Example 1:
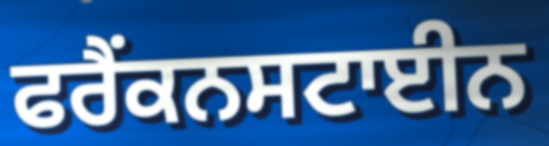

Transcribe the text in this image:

ਫਰੈਂਕਨਸਟਾਈਨ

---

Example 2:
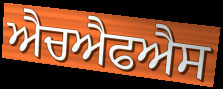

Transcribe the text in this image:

ਐਚਐਫਐਸ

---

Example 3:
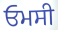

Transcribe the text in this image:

ਓਮਸੀ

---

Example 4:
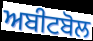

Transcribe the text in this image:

ਅਬੀਟਬੋਲ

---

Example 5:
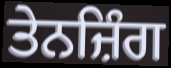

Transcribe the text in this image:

ਤੇਨਜ਼ਿੰਗ